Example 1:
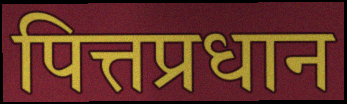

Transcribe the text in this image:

पित्तप्रधान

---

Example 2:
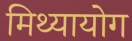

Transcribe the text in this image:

मिथ्यायोग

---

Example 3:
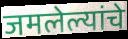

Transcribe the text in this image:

जमलेल्यांचे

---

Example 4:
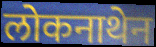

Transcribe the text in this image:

लोकनाथेन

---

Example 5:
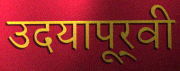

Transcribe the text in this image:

उदयापूर्वी